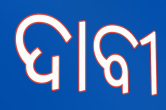
ଦାବୀ